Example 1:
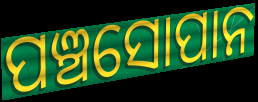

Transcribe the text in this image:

ପଞ୍ଚସୋପାନ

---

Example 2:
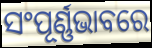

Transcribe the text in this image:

ସଂପୂର୍ଣ୍ଣଭାବରେ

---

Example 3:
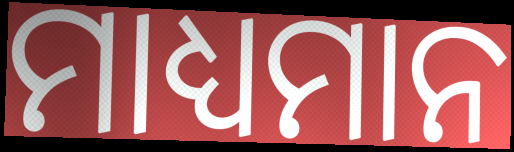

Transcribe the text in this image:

ମାଧ୍ଯମାନ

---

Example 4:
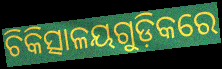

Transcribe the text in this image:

ଚିକିତ୍ସାଳୟଗୁଡ଼ିକରେ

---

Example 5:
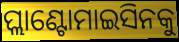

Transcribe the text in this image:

ପ୍ଲାଣ୍ଟୋମାଇସିନକୁ